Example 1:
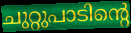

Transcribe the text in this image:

ചുറ്റുപാടിന്റെ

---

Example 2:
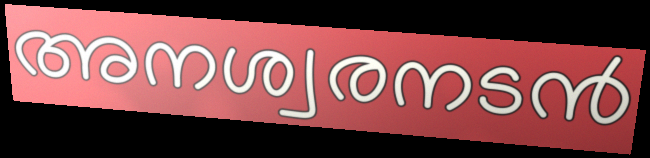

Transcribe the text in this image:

അനശ്വരനടൻ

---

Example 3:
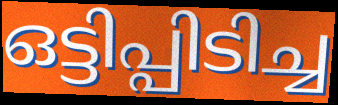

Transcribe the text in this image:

ഒട്ടിപ്പിടിച്ച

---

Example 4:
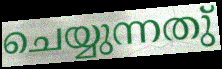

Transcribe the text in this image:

ചെയ്യുന്നതു്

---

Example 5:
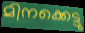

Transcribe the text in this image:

മിനക്കെട്ടു